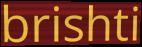
brishti